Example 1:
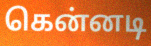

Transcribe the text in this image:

கென்னடி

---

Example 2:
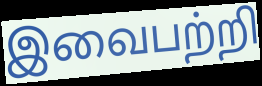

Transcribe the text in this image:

இவைபற்றி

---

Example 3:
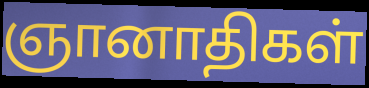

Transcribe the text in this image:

ஞானாதிகள்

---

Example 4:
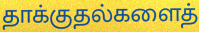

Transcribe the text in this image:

தாக்குதல்களைத்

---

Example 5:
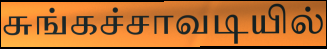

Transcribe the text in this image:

சுங்கச்சாவடியில்